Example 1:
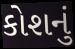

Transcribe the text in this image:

કોશનું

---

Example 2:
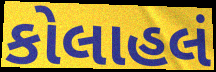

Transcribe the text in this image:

કોલાહલં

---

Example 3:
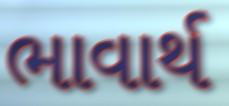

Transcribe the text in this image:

ભાવાર્થ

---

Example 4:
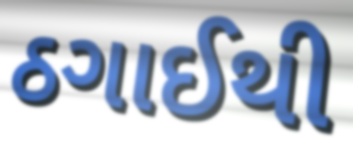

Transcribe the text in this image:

ઠગાઈથી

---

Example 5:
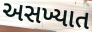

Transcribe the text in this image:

અસખ્યાત